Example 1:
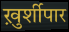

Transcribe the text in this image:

ख़ुर्शीपार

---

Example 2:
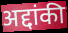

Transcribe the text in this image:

अद्दांकी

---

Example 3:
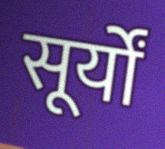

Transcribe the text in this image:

सूर्यों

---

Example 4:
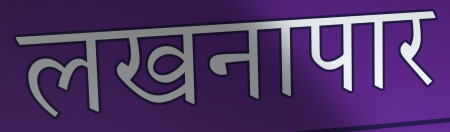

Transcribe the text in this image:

लखनापार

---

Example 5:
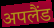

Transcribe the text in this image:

अपलैंड